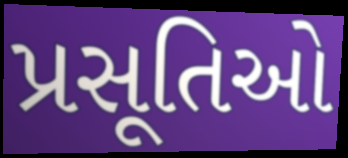
પ્રસૂતિઓ